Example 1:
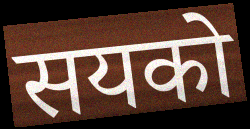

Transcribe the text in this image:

सयको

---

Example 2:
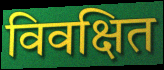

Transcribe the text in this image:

विवक्षित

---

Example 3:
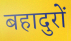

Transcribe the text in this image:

बहादुरों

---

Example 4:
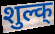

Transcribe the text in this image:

शुल्क्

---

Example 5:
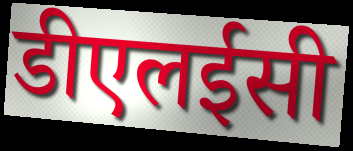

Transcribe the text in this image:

डीएलईसी